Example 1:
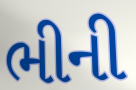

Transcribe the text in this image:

ભીની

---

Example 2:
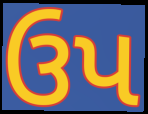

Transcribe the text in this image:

ઉપ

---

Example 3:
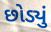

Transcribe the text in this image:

છોડ્યું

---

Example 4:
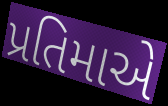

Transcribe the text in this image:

પ્રતિમાએ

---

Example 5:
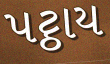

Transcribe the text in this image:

પટ્ઠાય